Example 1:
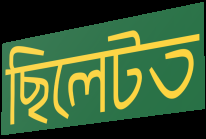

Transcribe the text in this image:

ছিলেটত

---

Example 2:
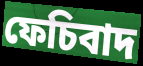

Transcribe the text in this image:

ফেচিবাদ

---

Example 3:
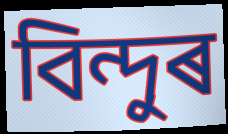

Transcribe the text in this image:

বিন্দুৰ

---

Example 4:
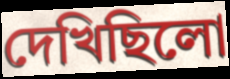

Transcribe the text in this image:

দেখিছিলো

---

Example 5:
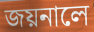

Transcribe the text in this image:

জয়নালে